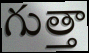
గుత్తా